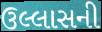
ઉલ્લાસની